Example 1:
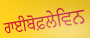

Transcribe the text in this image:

ਰਾਈਬੋਫ਼ਲੇਵਿਨ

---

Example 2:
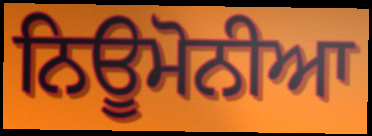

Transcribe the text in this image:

ਨਿਊਮੋਨੀਆ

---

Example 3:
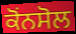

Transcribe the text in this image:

ਕੋਂਨਸੋਲ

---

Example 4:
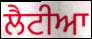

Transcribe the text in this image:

ਲੈਟੀਆ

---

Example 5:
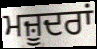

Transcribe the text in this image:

ਮਜ਼ੂਦਰਾਂ